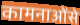
कामनाओंसे